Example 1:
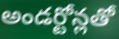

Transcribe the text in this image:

అండర్టోన్లతో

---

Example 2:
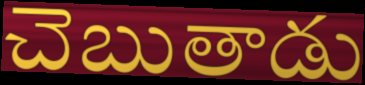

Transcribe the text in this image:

చెబుతాడు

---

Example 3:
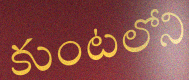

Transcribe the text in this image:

కుంటలోని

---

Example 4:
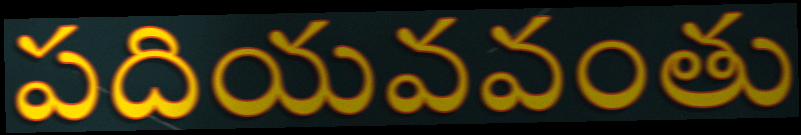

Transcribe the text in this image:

పదియవవంతు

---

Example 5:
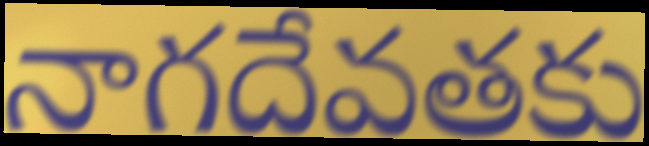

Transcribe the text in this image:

నాగదేవతకు